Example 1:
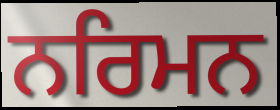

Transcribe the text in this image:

ਨਰਿਮਨ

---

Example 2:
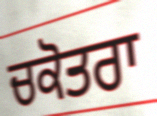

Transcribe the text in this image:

ਚਕੋਤਰਾ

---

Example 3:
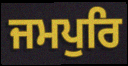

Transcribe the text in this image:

ਜਮਪੁਰਿ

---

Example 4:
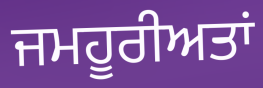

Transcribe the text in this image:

ਜਮਹੂਰੀਅਤਾਂ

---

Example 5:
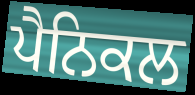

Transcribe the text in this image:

ਪੈਨਿਕਲ